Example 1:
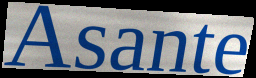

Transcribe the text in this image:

Asante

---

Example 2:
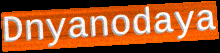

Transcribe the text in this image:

Dnyanodaya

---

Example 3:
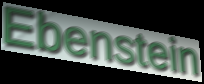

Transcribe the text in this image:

Ebenstein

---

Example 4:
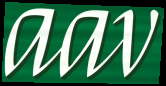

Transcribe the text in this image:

aav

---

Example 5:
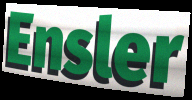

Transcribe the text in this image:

Ensler